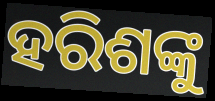
ହରିଶଙ୍କୁ